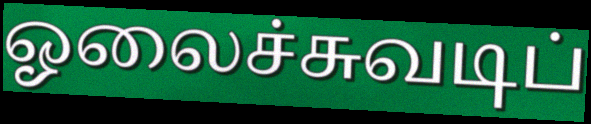
ஓலைச்சுவடிப்